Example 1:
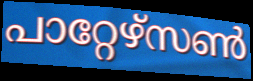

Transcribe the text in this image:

പാറ്റേഴ്സൺ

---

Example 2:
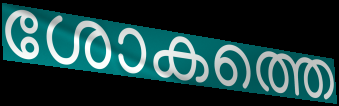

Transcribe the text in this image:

ശോകത്തെ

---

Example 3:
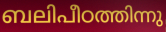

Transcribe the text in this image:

ബലിപീഠത്തിന്നു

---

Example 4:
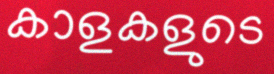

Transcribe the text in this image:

കാളകളുടെ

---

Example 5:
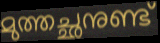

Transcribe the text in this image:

മുത്തച്ഛനുണ്ട്